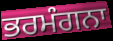
ਭਰਮੰਗਨਾ